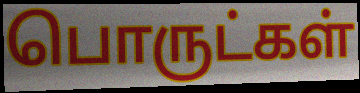
பொருட்கள்